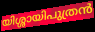
യിശ്ശായിപുത്രൻ